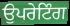
ਉਪਰੇਟਿੰਗ